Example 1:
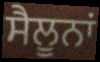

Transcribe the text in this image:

ਸੈਲੂਨਾਂ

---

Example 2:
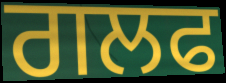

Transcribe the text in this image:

ਗਲਫ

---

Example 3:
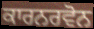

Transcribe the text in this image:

ਕਾਰਨਰਵੋਨ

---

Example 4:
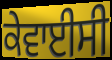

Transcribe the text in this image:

ਕੇਵਾਈਸੀ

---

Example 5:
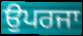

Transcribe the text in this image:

ਉਪਰਜਾ